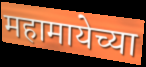
महामायेच्या